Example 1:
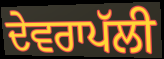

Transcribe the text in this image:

ਦੇਵਰਾਪੱਲੀ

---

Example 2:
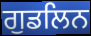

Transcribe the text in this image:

ਗੁਡਲਿਨ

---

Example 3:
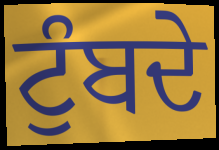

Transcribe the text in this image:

ਟੁੰਬਦੇ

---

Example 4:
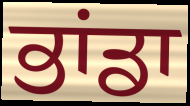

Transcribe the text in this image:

ਭਾਂਡਾ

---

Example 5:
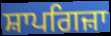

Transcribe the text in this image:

ਸ਼ਾਪਗਿਜ਼ਾ